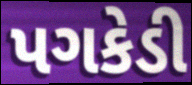
પગકેડી